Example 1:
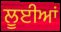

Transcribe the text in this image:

ਲੂਈਆਂ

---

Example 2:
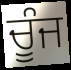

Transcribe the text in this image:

ਚੂੰਜ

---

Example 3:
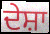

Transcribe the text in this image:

ਦੇਸ਼ਾ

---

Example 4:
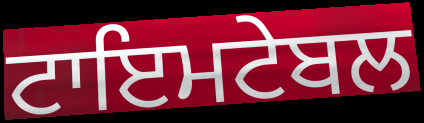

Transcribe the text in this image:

ਟਾਇਮਟੇਬਲ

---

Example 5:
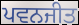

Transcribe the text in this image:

ਪਵਨਜੀਤ